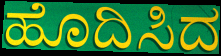
ಹೊದಿಸಿದ